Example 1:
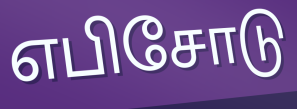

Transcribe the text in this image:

எபிசோடு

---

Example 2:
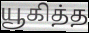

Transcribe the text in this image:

யூகித்த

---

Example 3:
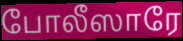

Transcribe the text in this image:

போலீஸாரே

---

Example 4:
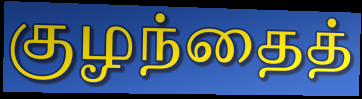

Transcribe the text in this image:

குழந்தைத்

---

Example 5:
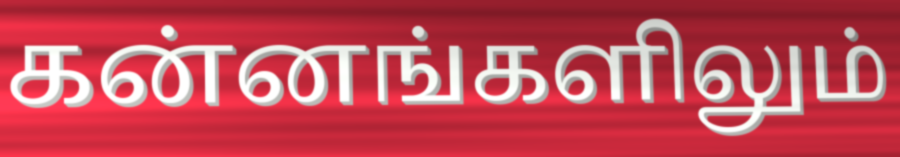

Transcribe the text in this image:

கன்னங்களிலும்